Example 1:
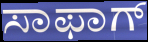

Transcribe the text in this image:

ಸಾಫಾಗ್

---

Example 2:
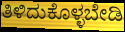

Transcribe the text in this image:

ತಿಳಿದುಕೊಳ್ಳಬೇಡಿ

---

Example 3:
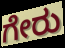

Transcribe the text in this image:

ಗೇರು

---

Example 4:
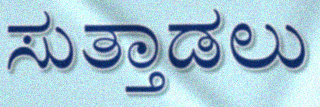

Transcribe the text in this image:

ಸುತ್ತಾಡಲು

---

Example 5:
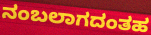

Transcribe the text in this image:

ನಂಬಲಾಗದಂತಹ